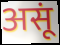
असूं